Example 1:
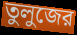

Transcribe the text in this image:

তুলুজের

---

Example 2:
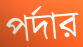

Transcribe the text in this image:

পর্দার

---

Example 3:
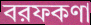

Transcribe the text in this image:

বরফকণা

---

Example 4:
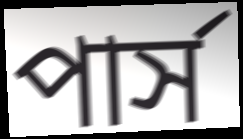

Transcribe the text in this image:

পার্স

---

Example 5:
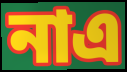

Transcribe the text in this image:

নাএ